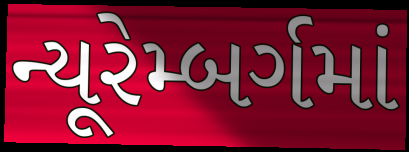
ન્યૂરેમ્બર્ગમાં